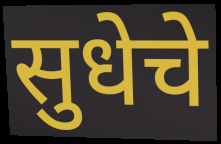
सुधेचे